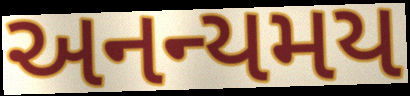
અનન્યમય